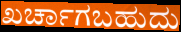
ಖರ್ಚಾಗಬಹುದು